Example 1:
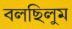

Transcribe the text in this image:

বলছিলুম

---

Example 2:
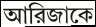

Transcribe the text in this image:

আরিজাকে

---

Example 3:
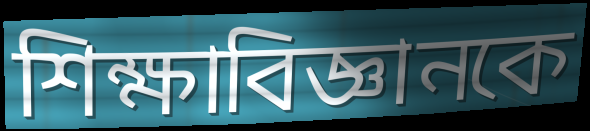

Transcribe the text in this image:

শিক্ষাবিজ্ঞানকে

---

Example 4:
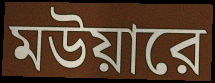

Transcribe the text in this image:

মউয়ারে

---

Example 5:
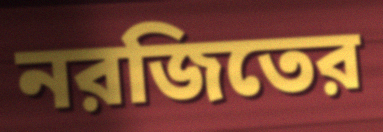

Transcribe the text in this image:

নরজিতের